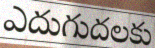
ఎదుగుదలకు